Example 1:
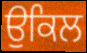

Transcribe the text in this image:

ਉਕਿਲ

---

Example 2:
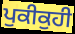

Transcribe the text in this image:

ਪੁਕੀਕੁਹੀ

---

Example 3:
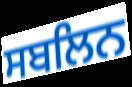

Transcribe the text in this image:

ਸਬਲਿਨ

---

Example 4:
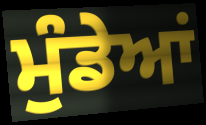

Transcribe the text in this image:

ਮੁੰਡੇਆਂ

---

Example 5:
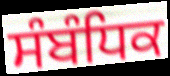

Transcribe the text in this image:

ਸੰਬੰਧਿਕ